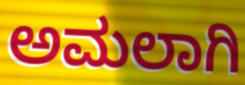
ಅಮಲಾಗಿ